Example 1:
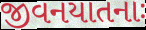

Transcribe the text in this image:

જીવનયાતનાઃ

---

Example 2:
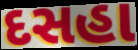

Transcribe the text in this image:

દસહા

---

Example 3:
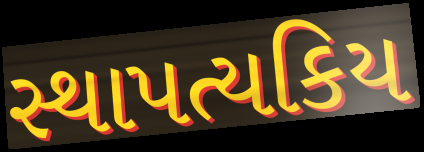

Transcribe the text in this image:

સ્થાપત્યકિય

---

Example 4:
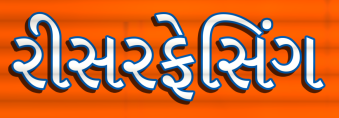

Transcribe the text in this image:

રીસરફેસિંગ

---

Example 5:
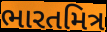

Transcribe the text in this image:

ભારતમિત્ર